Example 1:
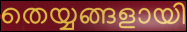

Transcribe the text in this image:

തെയ്യങ്ങളായി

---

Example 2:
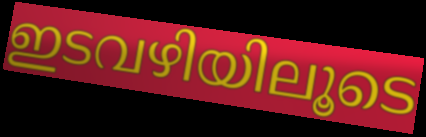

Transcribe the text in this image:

ഇടവഴിയിലൂടെ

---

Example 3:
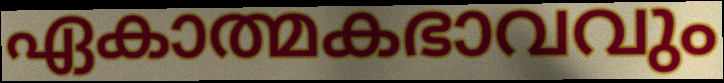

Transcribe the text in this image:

ഏകാത്മകഭാവവും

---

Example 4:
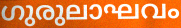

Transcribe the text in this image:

ഗുരുലാഘവം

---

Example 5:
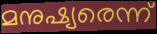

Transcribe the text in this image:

മനുഷ്യരെന്ന്